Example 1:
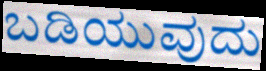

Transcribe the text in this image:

ಬಡಿಯುವುದು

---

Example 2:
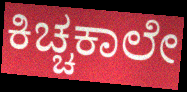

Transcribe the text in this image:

ಕಿಚ್ಚಕಾಲೇ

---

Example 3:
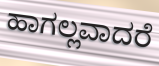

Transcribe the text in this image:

ಹಾಗಲ್ಲವಾದರೆ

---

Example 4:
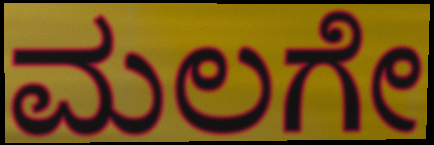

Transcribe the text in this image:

ಮಲಗೇ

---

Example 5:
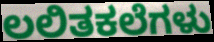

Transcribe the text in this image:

ಲಲಿತಕಲೆಗಳು